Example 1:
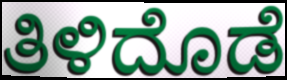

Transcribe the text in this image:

ತಿಳಿದೊಡೆ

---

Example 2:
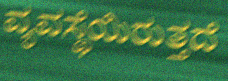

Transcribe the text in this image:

ವ್ಯವಸ್ಥೆಯಿರುತ್ತದೆ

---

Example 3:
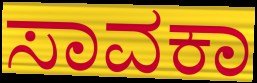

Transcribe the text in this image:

ಸಾವಕಾ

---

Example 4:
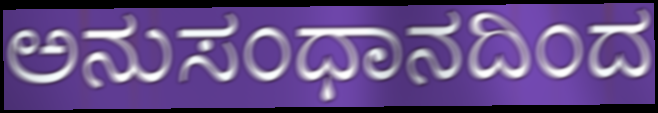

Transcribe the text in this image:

ಅನುಸಂಧಾನದಿಂದ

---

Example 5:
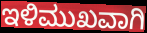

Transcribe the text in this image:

ಇಳಿಮುಖವಾಗಿ